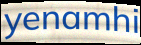
yenamhi